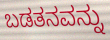
ಬಡತನವನ್ನು